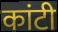
कांटी